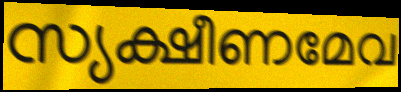
സ്യക്ഷീണമേവ